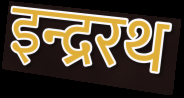
इन्द्ररथ